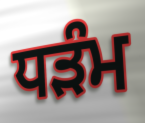
ਧੜੰਮ